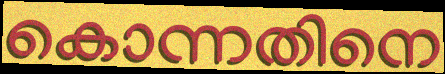
കൊന്നതിനെ